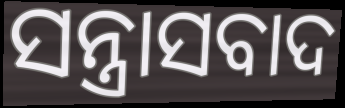
ସନ୍ତ୍ରାସବାଦ